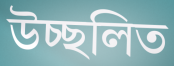
উচ্ছলিত